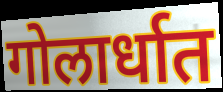
गोलार्धात